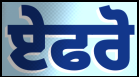
ਏਫਰੋ